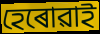
হেৰোৱাই